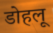
डोहलू